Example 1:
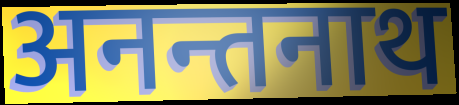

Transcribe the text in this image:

अनन्तनाथ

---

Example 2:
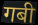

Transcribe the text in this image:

गबी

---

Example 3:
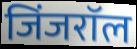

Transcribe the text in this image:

जिंजरॉल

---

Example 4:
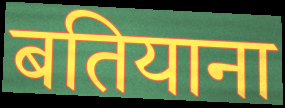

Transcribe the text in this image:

बतियाना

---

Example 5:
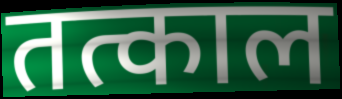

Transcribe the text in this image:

तत्काल